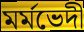
মৰ্মভেদী